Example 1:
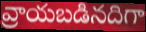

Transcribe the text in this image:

వ్రాయబడినదిగా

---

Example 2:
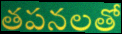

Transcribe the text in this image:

తపనలతో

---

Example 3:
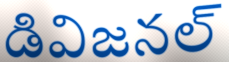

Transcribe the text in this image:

డివిజనల్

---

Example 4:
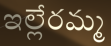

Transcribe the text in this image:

ఇల్లేరమ్మ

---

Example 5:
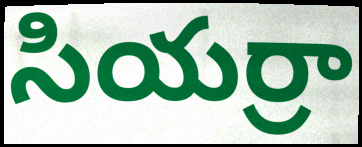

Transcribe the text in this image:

సియర్రా